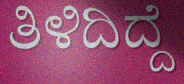
ತಿಳಿದಿದ್ದೆ